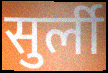
सुर्ली